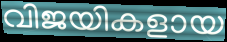
വിജയികളായ